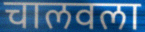
चालवला